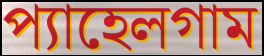
প্যাহেলগাম